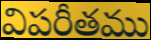
విపరీతము